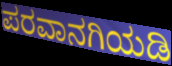
ಪರವಾನಗಿಯಡಿ